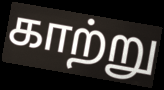
காற்று